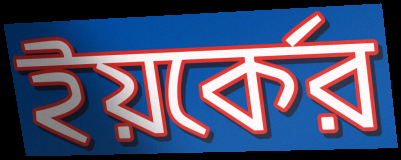
ইয়র্কের